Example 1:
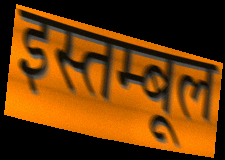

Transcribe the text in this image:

इस्तम्बूल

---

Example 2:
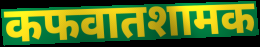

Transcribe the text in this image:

कफवातशामक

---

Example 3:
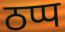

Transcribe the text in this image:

ठप्प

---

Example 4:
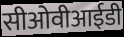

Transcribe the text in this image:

सीओवीआईडी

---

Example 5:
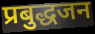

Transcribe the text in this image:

प्रबुद्धजन